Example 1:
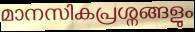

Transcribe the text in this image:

മാനസികപ്രശ്നങ്ങളും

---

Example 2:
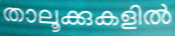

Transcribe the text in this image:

താലൂക്കുകളിൽ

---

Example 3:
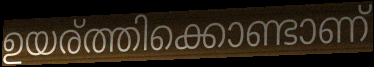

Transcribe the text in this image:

ഉയര്ത്തിക്കൊണ്ടാണ്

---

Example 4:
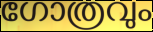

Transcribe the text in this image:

ഗോത്രവും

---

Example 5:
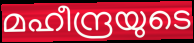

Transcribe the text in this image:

മഹീന്ദ്രയുടെ